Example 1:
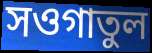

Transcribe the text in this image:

সওগাতুল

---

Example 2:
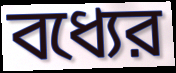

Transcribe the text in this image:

বধ্যের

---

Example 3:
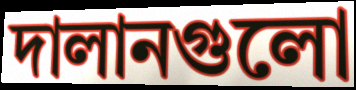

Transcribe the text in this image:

দালানগুলো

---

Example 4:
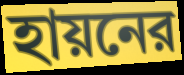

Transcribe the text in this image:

হায়নের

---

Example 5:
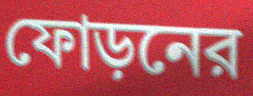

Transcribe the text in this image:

ফোড়নের